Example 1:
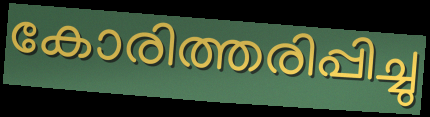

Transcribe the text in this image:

കോരിത്തരിപ്പിച്ചു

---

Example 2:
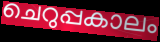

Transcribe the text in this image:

ചെറുപ്പകാലം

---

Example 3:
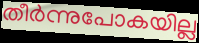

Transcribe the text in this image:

തീർന്നുപോകയില്ല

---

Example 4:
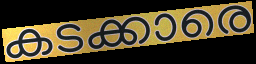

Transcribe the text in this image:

കടക്കാരെ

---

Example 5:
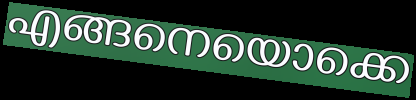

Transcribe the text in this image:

എങ്ങനെയൊക്കെ